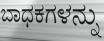
ಬಾಧಕಗಳನ್ನು